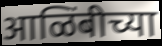
आळिंबीच्या